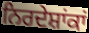
ਨਿਰਦੇਸ਼ਾਂਕਾਂ